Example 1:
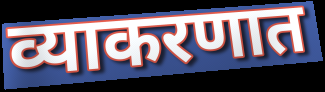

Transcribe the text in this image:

व्याकरणात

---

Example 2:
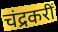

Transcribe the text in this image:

चंद्रकरीं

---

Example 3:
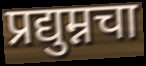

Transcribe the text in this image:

प्रद्युम्नचा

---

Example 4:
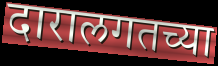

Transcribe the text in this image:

दारालगतच्या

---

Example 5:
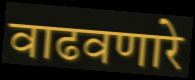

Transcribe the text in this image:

वाढवणारे